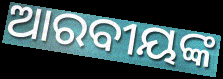
ଆରବୀୟଙ୍କ